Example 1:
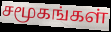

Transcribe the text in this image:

சமூகங்கள்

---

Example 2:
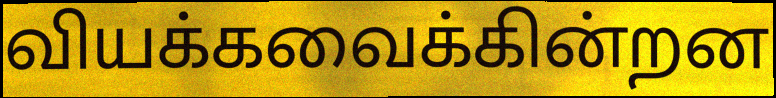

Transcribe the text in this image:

வியக்கவைக்கின்றன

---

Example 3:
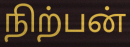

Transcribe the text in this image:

நிற்பன்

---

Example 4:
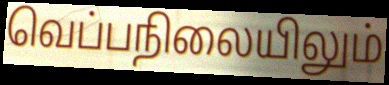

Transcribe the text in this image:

வெப்பநிலையிலும்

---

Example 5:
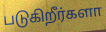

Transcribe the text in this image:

படுகிறீர்களா